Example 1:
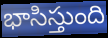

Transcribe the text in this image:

భాసిస్తుంది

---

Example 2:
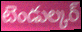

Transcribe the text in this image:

టెండుల్కర్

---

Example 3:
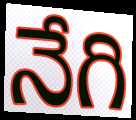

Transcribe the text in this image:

నేగి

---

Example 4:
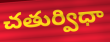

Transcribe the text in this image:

చతుర్విధా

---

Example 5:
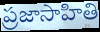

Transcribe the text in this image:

ప్రజాసాహితి